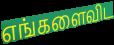
எங்களைவிட